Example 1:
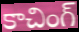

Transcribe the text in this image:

కాచింగ్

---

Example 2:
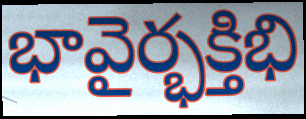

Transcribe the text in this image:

భావైర్భక్తిభి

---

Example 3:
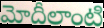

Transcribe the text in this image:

మోదీలాంటి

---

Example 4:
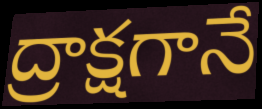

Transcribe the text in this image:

ద్రాక్షగానే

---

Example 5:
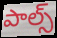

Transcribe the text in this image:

పాల్స్